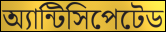
অ্যান্টিসিপেটেড